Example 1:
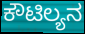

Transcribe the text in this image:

ಕೌಟಿಲ್ಯನ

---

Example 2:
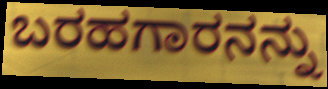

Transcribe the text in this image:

ಬರಹಗಾರನನ್ನು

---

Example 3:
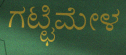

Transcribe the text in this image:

ಗಟ್ಟಿಮೇಳ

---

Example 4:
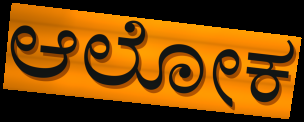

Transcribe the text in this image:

ಆಲೋಕ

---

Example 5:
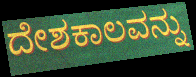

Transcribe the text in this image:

ದೇಶಕಾಲವನ್ನು